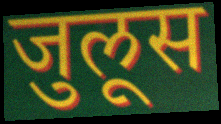
जुलूस